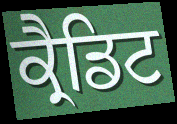
ਕ੍ਰੈਡਿਟ